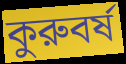
কুরুবর্ষ